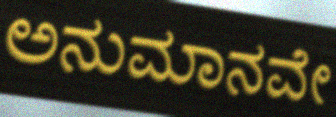
ಅನುಮಾನವೇ